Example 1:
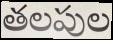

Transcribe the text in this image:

తలపుల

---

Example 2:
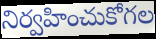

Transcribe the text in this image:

నిర్వహించుకోగల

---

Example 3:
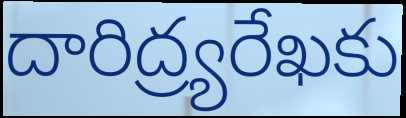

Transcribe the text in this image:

దారిద్ర్యరేఖకు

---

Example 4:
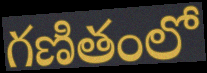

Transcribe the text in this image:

గణితంలో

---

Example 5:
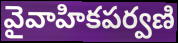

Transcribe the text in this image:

వైవాహికపర్వణి